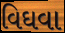
વિઘવા